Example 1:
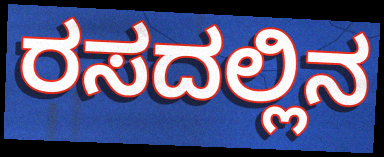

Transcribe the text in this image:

ರಸದಲ್ಲಿನ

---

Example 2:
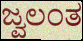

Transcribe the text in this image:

ಜ್ವಲಂತ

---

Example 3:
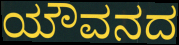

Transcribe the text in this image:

ಯೌವನದ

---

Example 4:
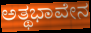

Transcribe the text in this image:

ಅತ್ಥಭಾವೇನ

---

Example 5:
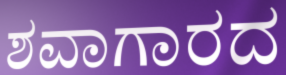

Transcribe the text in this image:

ಶವಾಗಾರದ